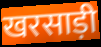
खरसाड़ी